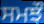
ਸਮਝੌ